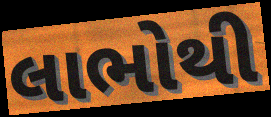
લાભોથી